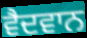
ਵੈਦਵਾਨ